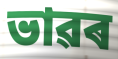
ভাৱৰ